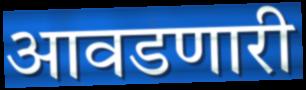
आवडणारी